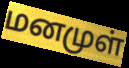
மனமுள்